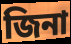
জিনা